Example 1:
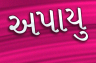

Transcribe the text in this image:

અપાયુ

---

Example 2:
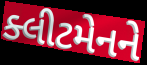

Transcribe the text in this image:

ક્લીટમેનને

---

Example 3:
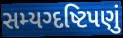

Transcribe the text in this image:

સમ્યગ્દષ્ટિપણું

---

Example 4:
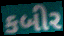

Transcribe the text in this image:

કબીર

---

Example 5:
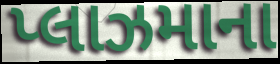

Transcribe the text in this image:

પ્લાઝમાના